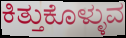
ಕಿತ್ತುಕೊಳ್ಳುವ